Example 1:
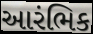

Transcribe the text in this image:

આરંભિક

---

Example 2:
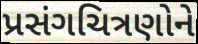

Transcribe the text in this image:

પ્રસંગચિત્રણોને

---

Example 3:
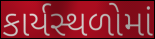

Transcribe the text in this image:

કાર્યસ્થળોમાં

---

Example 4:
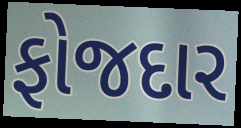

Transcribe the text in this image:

ફોજદાર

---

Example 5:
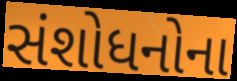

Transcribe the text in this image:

સંશોધનોના